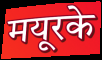
मयूरके